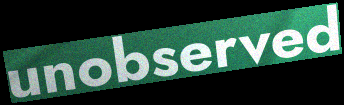
unobserved